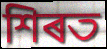
শিৰত